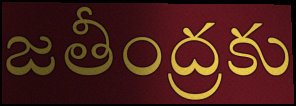
జతీంద్రకు